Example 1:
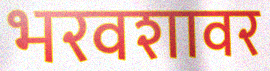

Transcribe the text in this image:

भरवशावर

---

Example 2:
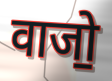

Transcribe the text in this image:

वाजो॒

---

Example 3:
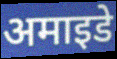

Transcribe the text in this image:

अमाइडे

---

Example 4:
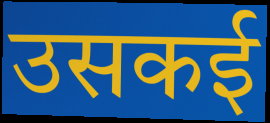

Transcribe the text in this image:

उसकई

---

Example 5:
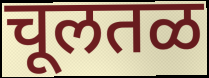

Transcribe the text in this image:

चूलतळ